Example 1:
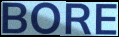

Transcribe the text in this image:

BORE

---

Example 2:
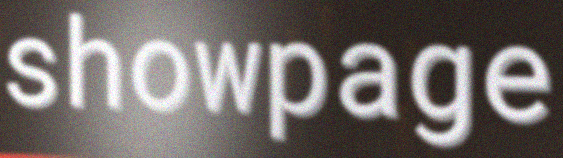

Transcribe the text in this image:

showpage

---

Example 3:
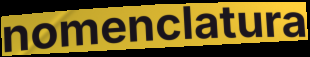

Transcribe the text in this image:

nomenclatura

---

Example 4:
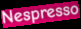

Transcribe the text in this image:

Nespresso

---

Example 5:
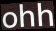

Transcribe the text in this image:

ohh